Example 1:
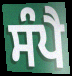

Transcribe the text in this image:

ਸੰਪੈ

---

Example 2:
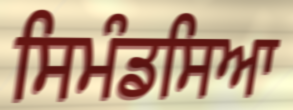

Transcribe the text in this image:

ਸਿਮੰਡਸਿਆ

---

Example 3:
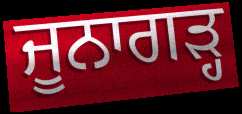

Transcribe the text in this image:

ਜੂਨਾਗੜ੍ਹ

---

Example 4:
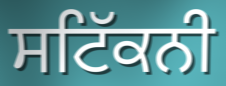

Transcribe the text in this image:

ਸਟਿੱਕਨੀ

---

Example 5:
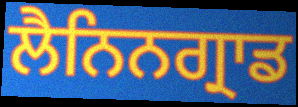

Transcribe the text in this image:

ਲੈਨਿਨਗ੍ਰਾਡ